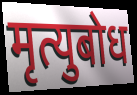
मृत्युबोध